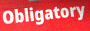
Obligatory